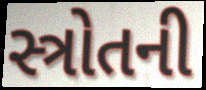
સ્ત્રોતની